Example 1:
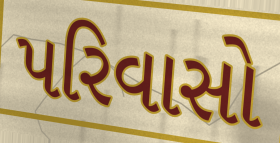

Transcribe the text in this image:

પરિવાસો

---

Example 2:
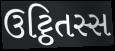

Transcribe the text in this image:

ઉટ્ઠિતસ્સ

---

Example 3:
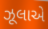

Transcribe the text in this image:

ઝૂલાએ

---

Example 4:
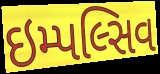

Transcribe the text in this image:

ઇમ્પલ્સિવ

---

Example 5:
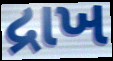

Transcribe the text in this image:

દ્રાખ